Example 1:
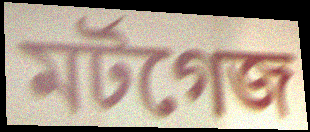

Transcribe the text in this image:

মর্টগেজ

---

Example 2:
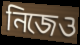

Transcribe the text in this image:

নিজেও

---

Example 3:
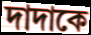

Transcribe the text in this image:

দাদাকে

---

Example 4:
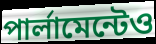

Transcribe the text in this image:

পার্লামেন্টেও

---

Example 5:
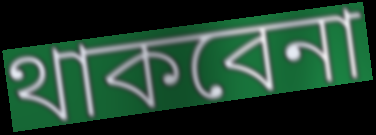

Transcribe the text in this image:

থাকবেনা